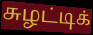
சுழட்டிக்